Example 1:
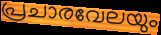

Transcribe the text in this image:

പ്രചാരവേലയും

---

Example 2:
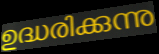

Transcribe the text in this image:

ഉദ്ധരിക്കുന്നു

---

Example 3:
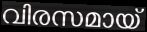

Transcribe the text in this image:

വിരസമായ്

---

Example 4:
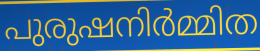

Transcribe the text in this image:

പുരുഷനിർമ്മിത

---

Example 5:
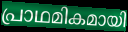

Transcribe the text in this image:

പ്രാഥമികമായി